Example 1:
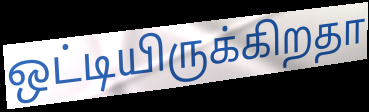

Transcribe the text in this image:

ஒட்டியிருக்கிறதா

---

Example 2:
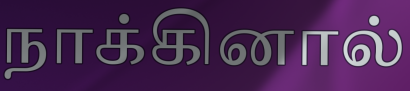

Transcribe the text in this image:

நாக்கினால்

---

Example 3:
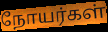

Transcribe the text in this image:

நோயர்கள்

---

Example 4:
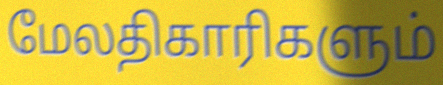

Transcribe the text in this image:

மேலதிகாரிகளும்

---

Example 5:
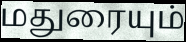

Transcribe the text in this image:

மதுரையும்